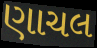
ણાચલ